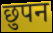
छुपन